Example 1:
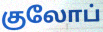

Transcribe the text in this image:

குலோப்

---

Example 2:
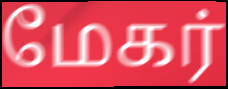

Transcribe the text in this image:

மேகர்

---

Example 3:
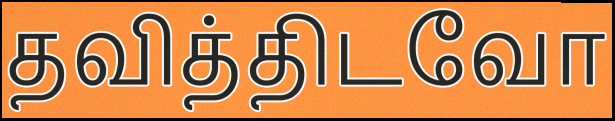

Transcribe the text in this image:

தவித்திடவோ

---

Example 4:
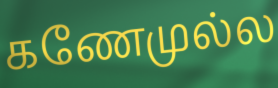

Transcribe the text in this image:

கணேமுல்ல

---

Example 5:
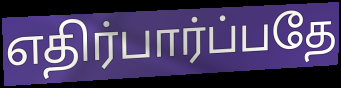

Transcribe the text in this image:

எதிர்பார்ப்பதே